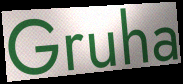
Gruha